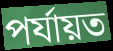
পৰ্যায়ত